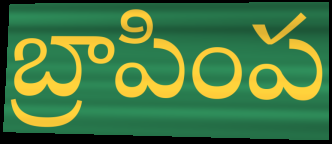
బ్రాపింప